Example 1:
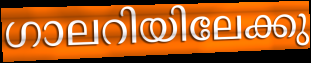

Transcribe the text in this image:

ഗാലറിയിലേക്കു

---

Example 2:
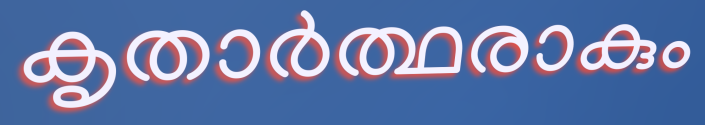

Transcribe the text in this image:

കൃതാർത്ഥരാകും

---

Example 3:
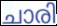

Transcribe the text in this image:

ചാരി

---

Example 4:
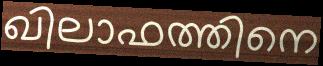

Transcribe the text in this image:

ഖിലാഫത്തിനെ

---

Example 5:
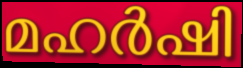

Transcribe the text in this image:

മഹർഷി